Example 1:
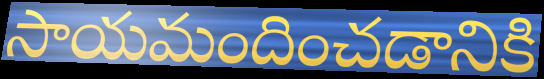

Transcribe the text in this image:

సాయమందించడానికి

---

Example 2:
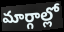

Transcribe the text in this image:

మార్గాల్లో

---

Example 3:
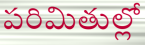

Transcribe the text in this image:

పరిమితుల్లో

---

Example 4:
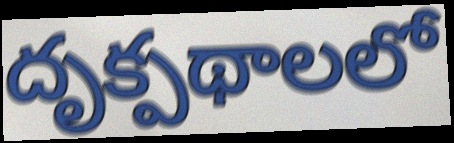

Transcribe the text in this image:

దృక్పథాలలో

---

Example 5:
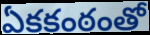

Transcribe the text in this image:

ఏకకంఠంతో